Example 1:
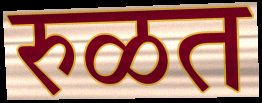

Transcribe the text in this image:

रुळत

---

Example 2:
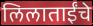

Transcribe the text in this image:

लिलाताईंचे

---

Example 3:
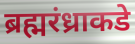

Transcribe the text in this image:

ब्रह्मरंध्राकडे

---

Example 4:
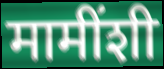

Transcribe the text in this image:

मामींशी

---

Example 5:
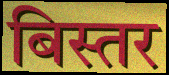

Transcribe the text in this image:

बिस्तर